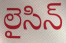
లైసిన్